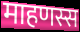
माहणस्स